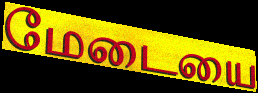
மேடையை